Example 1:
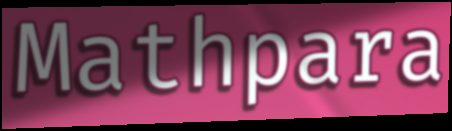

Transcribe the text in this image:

Mathpara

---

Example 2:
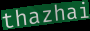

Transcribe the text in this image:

thazhai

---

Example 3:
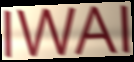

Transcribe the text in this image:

IWAI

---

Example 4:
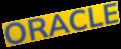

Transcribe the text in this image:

ORACLE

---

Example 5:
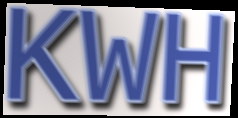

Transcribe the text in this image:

KWH